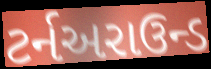
ટર્નઅરાઉન્ડ